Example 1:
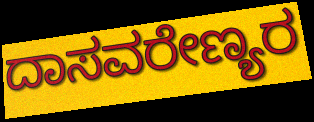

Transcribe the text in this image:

ದಾಸವರೇಣ್ಯರ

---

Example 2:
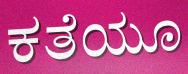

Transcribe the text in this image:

ಕತೆಯೂ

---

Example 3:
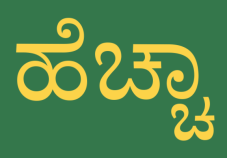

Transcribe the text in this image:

ಹೆಚ್ಚಾ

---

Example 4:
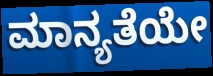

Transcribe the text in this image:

ಮಾನ್ಯತೆಯೇ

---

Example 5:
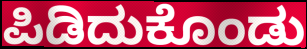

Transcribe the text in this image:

ಪಿಡಿದುಕೊಂಡು